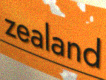
zealand